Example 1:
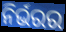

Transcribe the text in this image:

ନିର୍ଭରର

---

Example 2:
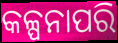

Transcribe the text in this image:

କଳ୍ପନାପରି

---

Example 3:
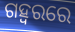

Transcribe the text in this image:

ଗହ୍ୱରରେ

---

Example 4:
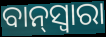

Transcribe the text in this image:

ବାନ୍‌ସ୍ୱାରା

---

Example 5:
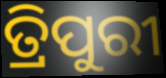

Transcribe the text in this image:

ତ୍ରିପୁରୀ